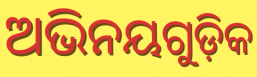
ଅଭିନୟଗୁଡ଼ିକ